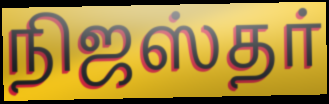
நிஜஸ்தர்